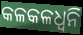
କଳକଳଧ୍ଵନି